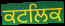
ਕਟਲਿਕ